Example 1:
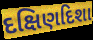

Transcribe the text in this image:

દક્ષિણદિશા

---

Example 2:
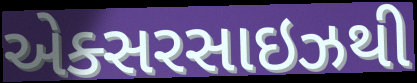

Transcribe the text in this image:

એક્સરસાઇઝથી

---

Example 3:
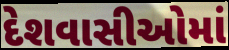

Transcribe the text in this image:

દેશવાસીઓમાં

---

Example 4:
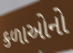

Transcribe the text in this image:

કળાઓનો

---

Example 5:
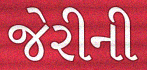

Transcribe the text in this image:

જેરીની